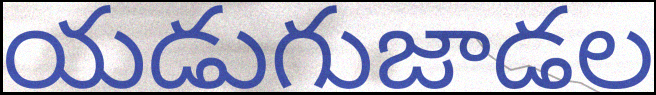
యడుగుజాడల